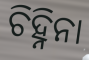
ଚିହ୍ନିନା